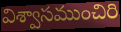
విశ్వాసముంచిరి